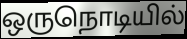
ஒருநொடியில்